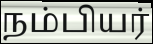
நம்பியர்